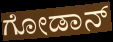
ಗೋಡಾನ್